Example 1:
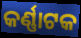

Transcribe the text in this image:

କର୍ଣ୍ଣାଟକ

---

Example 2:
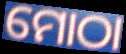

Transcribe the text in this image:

ମୋଠା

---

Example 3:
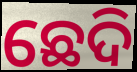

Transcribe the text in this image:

ଛେଦି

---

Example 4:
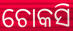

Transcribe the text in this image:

ଚୋକସି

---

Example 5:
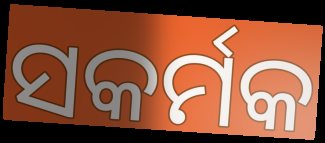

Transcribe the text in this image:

ସକର୍ମକ